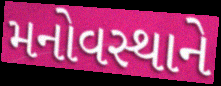
મનોવસ્થાને